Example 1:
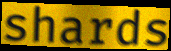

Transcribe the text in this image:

shards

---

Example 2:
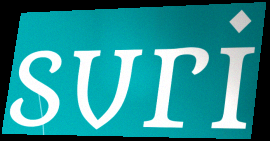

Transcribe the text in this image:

suri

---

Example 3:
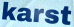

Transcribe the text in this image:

karst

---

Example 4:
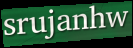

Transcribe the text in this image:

srujanhw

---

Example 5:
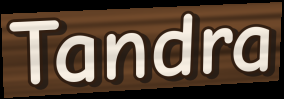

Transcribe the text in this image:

Tandra